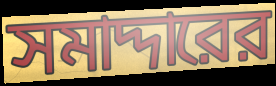
সমাদ্দারের